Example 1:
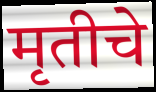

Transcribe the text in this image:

मृतीचे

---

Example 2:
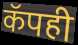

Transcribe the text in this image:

कॅपही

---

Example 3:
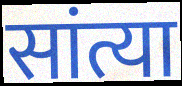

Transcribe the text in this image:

सांत्या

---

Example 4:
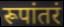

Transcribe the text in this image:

रूपांतरं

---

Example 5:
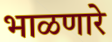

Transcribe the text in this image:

भाळणारे